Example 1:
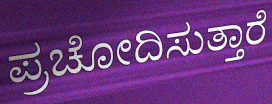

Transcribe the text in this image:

ಪ್ರಚೋದಿಸುತ್ತಾರೆ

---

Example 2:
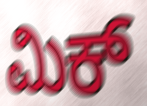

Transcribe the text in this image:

ಮಿಕ್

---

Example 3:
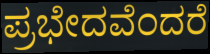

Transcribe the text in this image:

ಪ್ರಭೇದವೆಂದರೆ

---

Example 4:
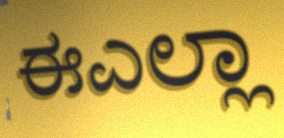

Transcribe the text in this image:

ಈಎಲ್ಲಾ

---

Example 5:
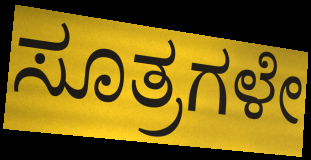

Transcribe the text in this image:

ಸೂತ್ರಗಳೇ